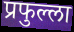
प्रफुल्ला